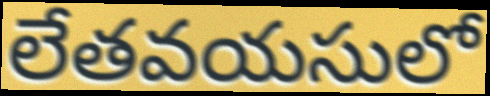
లేతవయసులో